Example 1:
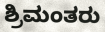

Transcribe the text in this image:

ಶ್ರಿಮಂತರು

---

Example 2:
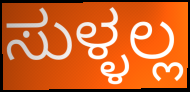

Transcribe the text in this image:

ಸುಳ್ಳಲ್ಲ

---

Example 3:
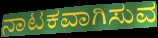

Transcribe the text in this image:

ನಾಟಕವಾಗಿಸುವ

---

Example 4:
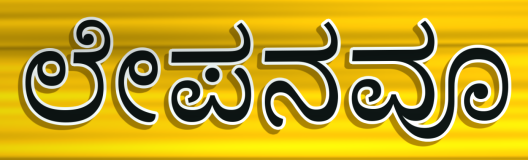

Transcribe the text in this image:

ಲೇಪನವೂ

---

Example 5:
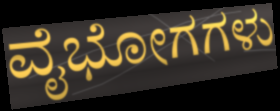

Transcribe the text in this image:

ವೈಭೋಗಗಳು